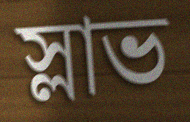
স্লাভ